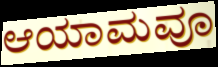
ಆಯಾಮವೂ